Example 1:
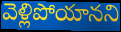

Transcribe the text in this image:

వెళ్లిపోయానని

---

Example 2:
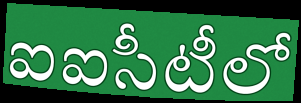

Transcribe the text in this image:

ఐఐసీటీలో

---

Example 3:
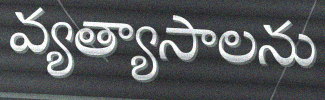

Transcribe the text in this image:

వ్యత్యాసాలను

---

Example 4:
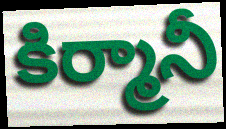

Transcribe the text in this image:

కిర్మానీ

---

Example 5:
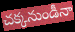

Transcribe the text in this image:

చక్కనుండీనా